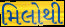
મિલોથી